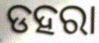
ଡହରା